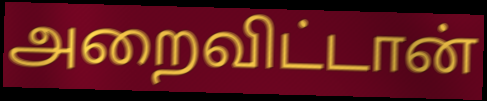
அறைவிட்டான்